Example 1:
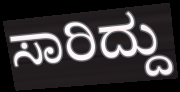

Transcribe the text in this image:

ಸಾರಿದ್ದು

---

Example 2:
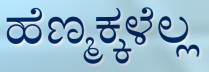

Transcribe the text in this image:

ಹೆಣ್ಮಕ್ಕಳೆಲ್ಲ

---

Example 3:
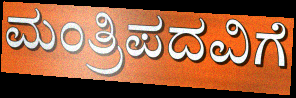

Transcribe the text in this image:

ಮಂತ್ರಿಪದವಿಗೆ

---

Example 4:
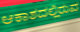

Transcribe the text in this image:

ಆಕಾಶದಲ್ಲಿರುವ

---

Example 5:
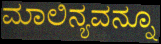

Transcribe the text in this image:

ಮಾಲಿನ್ಯವನ್ನೂ